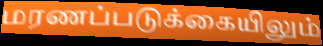
மரணப்படுக்கையிலும்